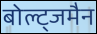
बोल्ट्जमैन